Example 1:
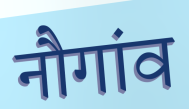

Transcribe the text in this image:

नौगांव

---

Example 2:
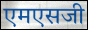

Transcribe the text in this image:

एमएसजी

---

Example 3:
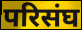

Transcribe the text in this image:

परिसंघ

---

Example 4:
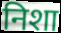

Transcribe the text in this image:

निशा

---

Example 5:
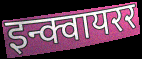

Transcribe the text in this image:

इन्क्वायरर